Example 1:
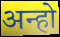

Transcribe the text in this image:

अन्हो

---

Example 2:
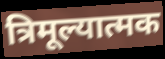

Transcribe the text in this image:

त्रिमूल्यात्मक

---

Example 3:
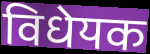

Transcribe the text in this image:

विधेयक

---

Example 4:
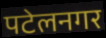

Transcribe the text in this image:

पटेलनगर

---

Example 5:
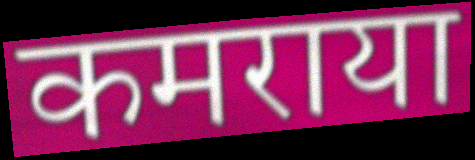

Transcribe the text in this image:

कमराया